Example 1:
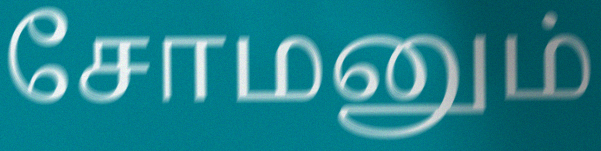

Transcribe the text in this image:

சோமனும்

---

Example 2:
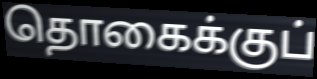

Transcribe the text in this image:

தொகைக்குப்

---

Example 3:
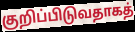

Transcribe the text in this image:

குறிப்பிடுவதாகத்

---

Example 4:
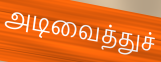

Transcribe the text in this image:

அடிவைத்துச்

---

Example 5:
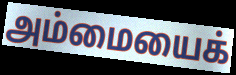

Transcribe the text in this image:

அம்மையைக்